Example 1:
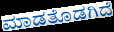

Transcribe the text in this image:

ಮಾಡತೊಡಗಿದೆ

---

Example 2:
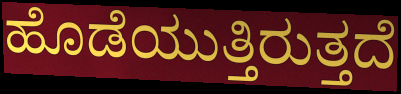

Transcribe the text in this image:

ಹೊಡೆಯುತ್ತಿರುತ್ತದೆ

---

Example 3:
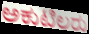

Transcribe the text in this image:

ಅಕುಟಿಲರು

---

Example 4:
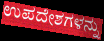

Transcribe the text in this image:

ಉಪದೇಶಗಳನ್ನು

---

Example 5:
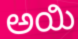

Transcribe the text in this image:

ಅಯಿ